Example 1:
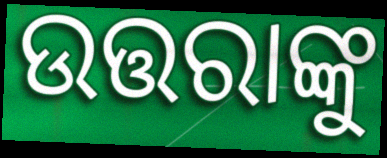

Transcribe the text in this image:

ଉତ୍ତରାଙ୍କୁ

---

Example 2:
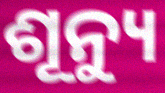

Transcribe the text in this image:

ଶୂନ୍ୟୁ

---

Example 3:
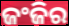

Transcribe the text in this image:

ଜଂଜିର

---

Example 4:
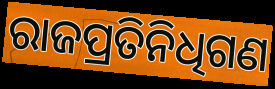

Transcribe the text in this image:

ରାଜପ୍ରତିନିଧିଗଣ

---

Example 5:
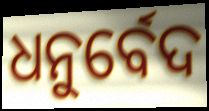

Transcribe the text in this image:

ଧନୁର୍ବେଦ